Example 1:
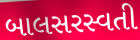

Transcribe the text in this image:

બાલસરસ્વતી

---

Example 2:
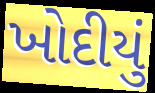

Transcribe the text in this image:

ખોદીયું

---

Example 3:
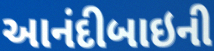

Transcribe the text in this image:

આનંદીબાઇની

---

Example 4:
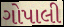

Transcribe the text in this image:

ગોપાલી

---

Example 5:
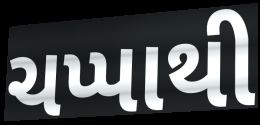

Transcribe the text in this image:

ચપ્પાથી